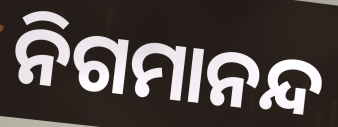
ନିଗମାନନ୍ଦ